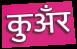
कुअँर